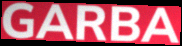
GARBA